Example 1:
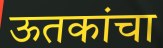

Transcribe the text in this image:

ऊतकांचा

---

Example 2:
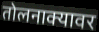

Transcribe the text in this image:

तोलनाक्यावर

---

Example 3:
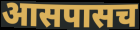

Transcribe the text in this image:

आसपासच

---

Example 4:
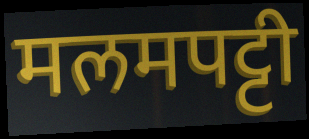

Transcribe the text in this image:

मलमपट्टी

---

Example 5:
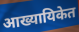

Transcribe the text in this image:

आख्यायिकेत